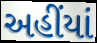
અહીંયાં